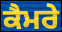
ਕੈਮਰੇ